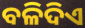
ବଳିଦିଏ